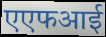
एएफआई